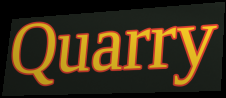
Quarry